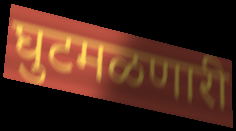
घुटमळणारी